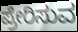
ಪ್ರೇರಿಸುವ